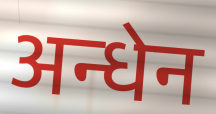
अन्धेन